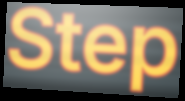
Step